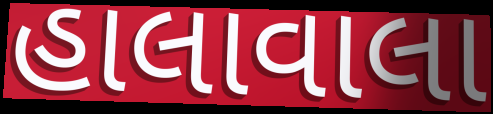
હાલાવાલા